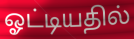
ஓட்டியதில்